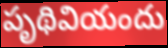
పృథివియందు